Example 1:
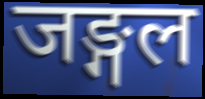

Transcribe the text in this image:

जङ्गल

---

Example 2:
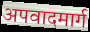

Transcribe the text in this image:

अपवादमार्ग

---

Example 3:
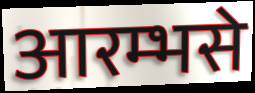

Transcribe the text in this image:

आरम्भसे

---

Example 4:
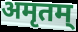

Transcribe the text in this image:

अमृतम्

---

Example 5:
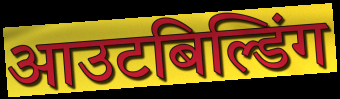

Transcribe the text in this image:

आउटबिल्डिंग